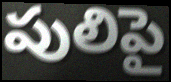
పులిపై